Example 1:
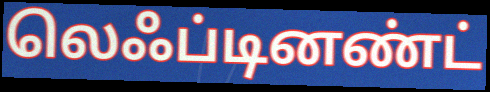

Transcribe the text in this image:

லெஃப்டினண்ட்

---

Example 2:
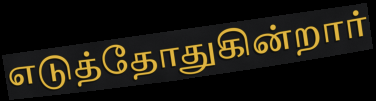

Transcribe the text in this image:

எடுத்தோதுகின்றார்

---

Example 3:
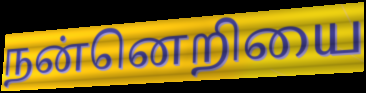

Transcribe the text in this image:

நன்னெறியை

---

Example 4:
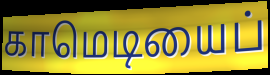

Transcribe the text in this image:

காமெடியைப்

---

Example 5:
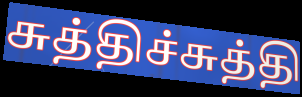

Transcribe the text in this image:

சுத்திச்சுத்தி